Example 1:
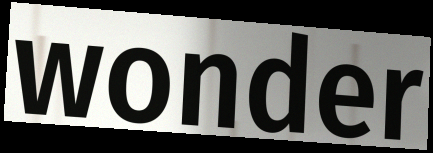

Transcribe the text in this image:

wonder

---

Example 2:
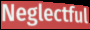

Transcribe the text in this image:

Neglectful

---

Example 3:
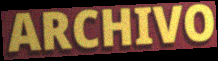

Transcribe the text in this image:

ARCHIVO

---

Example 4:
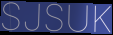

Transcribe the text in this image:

SJSUK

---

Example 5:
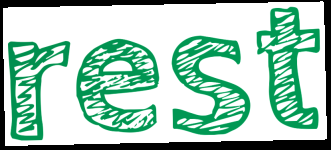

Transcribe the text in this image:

rest